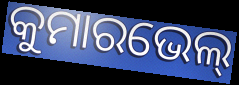
କୁମାରଭେଲ୍